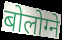
बोलोग्ने